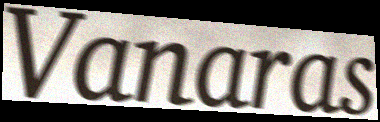
Vanaras